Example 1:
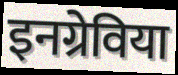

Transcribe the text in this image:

इनग्रेविया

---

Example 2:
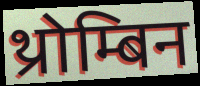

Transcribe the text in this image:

थ्रोम्बिन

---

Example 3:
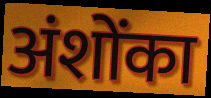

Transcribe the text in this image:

अंशोंका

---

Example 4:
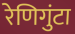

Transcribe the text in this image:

रेणिगुंटा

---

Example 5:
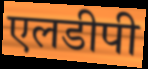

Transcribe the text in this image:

एलडीपी